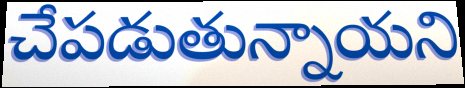
చేపడుతున్నాయని